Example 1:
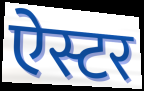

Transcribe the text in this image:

ऐस्टर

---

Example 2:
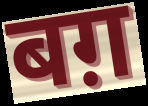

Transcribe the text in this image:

बग़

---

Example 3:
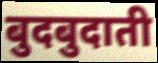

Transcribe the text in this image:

बुदबुदाती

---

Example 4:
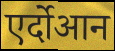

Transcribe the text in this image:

एर्दोआन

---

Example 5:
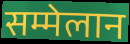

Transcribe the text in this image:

सम्मेलान